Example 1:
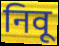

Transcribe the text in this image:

निवू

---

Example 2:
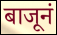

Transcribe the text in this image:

बाजूनं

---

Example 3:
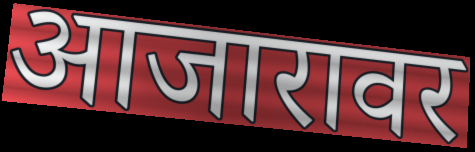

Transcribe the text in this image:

आजारावर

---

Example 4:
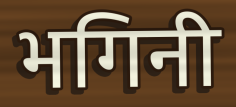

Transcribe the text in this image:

भगिनी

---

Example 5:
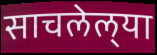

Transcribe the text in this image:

साचलेल्या